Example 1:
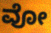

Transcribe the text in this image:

ವೋ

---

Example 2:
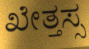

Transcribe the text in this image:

ಖೇತ್ತಸ್ಸ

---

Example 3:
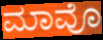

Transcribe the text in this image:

ಮಾವೊ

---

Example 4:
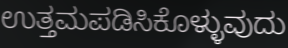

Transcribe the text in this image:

ಉತ್ತಮಪಡಿಸಿಕೊಳ್ಳುವುದು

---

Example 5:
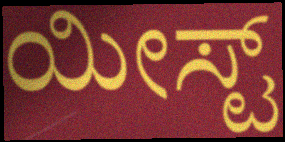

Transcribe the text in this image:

ಯೀಸ್ಟ್